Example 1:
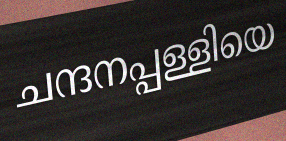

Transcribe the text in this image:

ചന്ദനപ്പള്ളിയെ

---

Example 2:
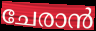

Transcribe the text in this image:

ചേരാൻ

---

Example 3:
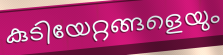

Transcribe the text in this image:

കുടിയേറ്റങ്ങളെയും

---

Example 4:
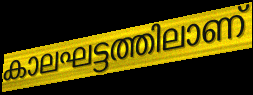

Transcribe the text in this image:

കാലഘട്ടത്തിലാണ്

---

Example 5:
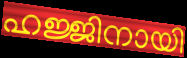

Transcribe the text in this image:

ഹജ്ജിനായി